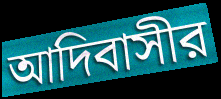
আদিবাসীর